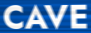
CAVE